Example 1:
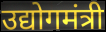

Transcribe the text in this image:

उद्योगमंत्री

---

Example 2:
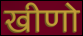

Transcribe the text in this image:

खीणो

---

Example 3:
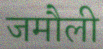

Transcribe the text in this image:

जमौली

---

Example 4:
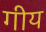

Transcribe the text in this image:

गीय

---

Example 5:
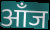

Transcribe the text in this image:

आँज